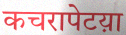
कचरापेटय़ा